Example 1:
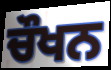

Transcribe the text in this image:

ਚੌਖਨ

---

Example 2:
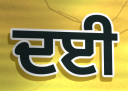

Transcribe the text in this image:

ਦਈ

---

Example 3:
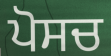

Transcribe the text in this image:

ਪੋਸਚ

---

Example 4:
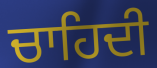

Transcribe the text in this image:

ਚਾਹਿਦੀ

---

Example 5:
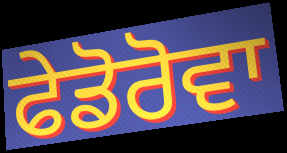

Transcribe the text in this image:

ਫੇਡੋਰੋਵਾ